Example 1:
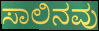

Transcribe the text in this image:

ಸಾಲಿನವು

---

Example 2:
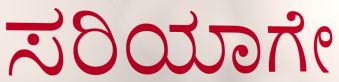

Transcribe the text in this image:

ಸರಿಯಾಗೇ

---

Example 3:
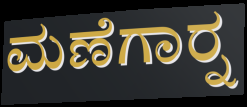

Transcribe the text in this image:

ಮಣೆಗಾರ್‍ನ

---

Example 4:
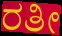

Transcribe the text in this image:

ರತೀ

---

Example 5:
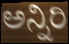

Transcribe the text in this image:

ಅನ್ನಿರಿ